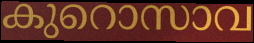
കുറൊസാവ